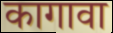
कागावा